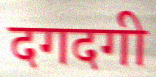
दगदगी